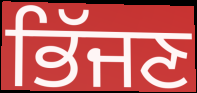
ਭਿੱਜਣ